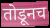
तोडूनच